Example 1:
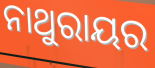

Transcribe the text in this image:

ନାଥୁରାୟର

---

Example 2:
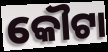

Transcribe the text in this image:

କୌଟା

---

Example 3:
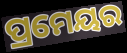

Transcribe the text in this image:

ପ୍ରମେୟର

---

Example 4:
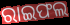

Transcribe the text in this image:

ରାଇଫଲ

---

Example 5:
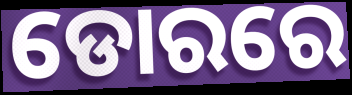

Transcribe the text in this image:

ଡୋରରେ